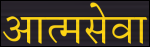
आत्मसेवा